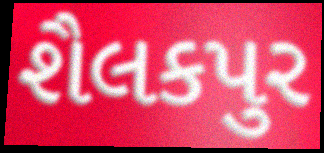
શૈલકપુર